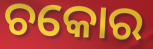
ଚକୋର